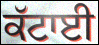
ਕੱਟਾਈ